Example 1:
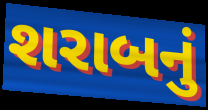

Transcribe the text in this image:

શરાબનું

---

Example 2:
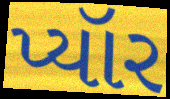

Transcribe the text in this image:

પ્યૉર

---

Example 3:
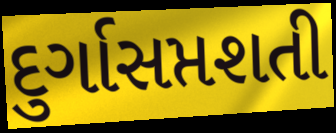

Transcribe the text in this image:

દુર્ગાસપ્તશતી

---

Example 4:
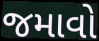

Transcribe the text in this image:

જમાવો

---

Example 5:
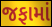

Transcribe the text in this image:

જફામાં